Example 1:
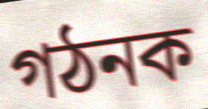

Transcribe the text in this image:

গঠনক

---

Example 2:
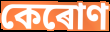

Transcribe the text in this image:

কেৰোণ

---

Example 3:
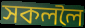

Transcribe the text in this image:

সকললৈ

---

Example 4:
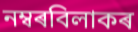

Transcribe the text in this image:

নম্বৰবিলাকৰ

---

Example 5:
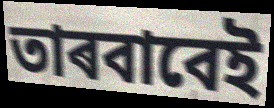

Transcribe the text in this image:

তাৰবাবেই